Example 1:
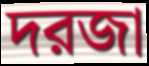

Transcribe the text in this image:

দরজা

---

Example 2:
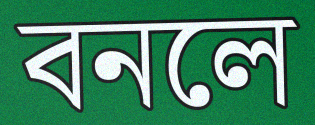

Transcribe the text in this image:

বনলে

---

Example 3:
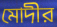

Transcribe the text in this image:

মোদীর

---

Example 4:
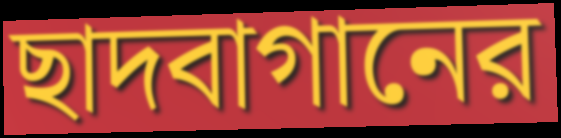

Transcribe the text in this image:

ছাদবাগানের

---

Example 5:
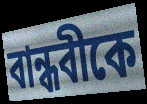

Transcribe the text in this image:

বান্ধবীকে